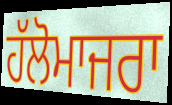
ਹੱਲੋਮਾਜਰਾ